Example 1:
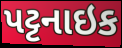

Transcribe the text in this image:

પટ્ટનાઇક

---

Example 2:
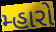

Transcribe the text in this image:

મ્હારો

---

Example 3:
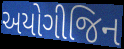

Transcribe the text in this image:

અયોગીજિન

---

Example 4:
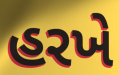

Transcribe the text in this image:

હરખે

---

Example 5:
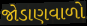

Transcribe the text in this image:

જોડાણવાળો